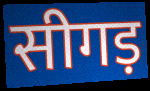
सीगड़